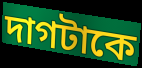
দাগটাকে